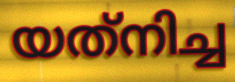
യത്‌നിച്ച